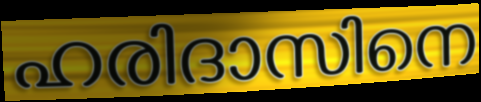
ഹരിദാസിനെ